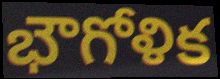
భౌగోళిక